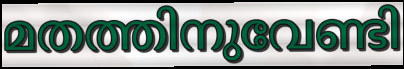
മതത്തിനുവേണ്ടി